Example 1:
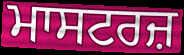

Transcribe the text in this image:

ਮਾਸਟਰਜ਼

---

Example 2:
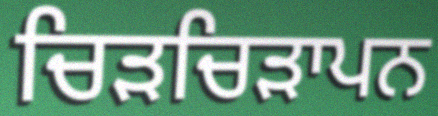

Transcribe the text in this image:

ਚਿੜਚਿੜਾਪਨ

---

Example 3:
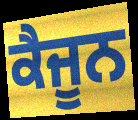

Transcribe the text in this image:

ਕੈਜੂਨ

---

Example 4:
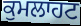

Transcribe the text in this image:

ਕੁਮਲਾਹਟ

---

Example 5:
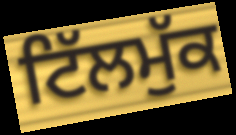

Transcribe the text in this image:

ਟਿੱਲਮੁੱਕ